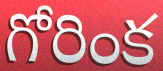
గోరింక